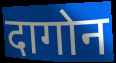
दागोन